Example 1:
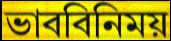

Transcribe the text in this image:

ভাববিনিময়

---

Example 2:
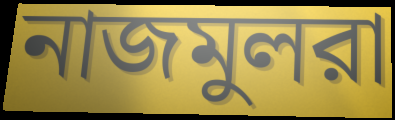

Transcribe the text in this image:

নাজমুলরা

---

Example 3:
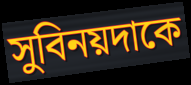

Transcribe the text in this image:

সুবিনয়দাকে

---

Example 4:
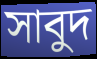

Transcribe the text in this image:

সাবুদ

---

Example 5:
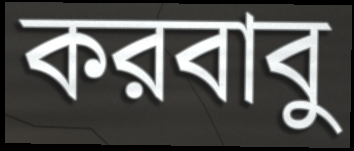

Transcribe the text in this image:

করবাবু